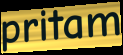
pritam